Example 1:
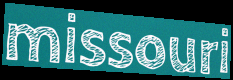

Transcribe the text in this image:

missouri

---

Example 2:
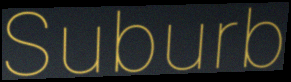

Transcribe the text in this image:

Suburb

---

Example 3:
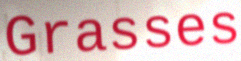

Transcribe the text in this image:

Grasses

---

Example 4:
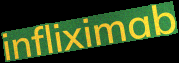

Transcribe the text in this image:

infliximab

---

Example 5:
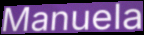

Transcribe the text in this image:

Manuela